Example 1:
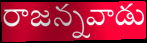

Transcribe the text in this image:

రాజన్నవాడు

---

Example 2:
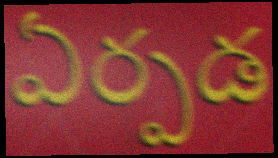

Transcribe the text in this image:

ఏర్పడ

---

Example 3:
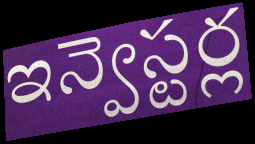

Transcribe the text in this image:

ఇన్వెస్టర్ల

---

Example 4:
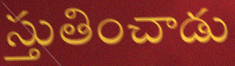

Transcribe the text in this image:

స్తుతించాడు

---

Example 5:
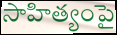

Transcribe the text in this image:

సాహిత్యంపై